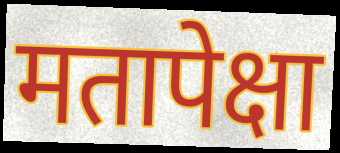
मतापेक्षा